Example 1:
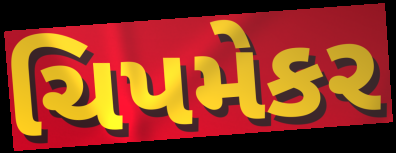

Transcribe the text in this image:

ચિપમેકર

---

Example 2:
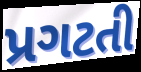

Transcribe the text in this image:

પ્રગટતી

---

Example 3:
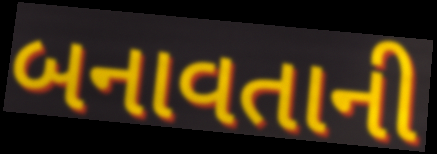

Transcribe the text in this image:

બનાવતાની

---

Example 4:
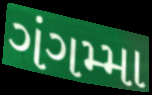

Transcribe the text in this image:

ગંગમ્મા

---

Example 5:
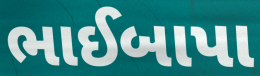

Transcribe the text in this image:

ભાઈબાપા